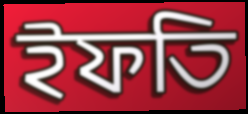
ইফতি